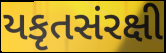
યકૃતસંરક્ષી